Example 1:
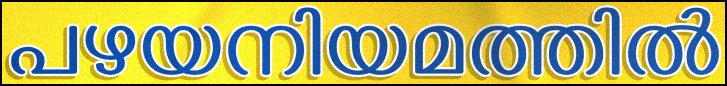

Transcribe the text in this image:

പഴയനിയമത്തിൽ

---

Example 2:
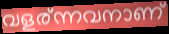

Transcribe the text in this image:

വളര്ന്നവനാണ്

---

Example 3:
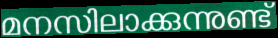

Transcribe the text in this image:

മനസിലാക്കുന്നുണ്ട്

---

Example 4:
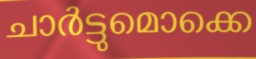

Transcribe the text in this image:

ചാർട്ടുമൊക്കെ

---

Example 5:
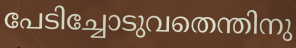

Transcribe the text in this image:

പേടിച്ചോടുവതെന്തിനു